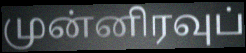
முன்னிரவுப்